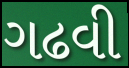
ગઢવી